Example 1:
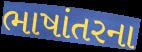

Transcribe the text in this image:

ભાષાંતરના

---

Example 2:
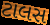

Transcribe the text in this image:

ટાલસ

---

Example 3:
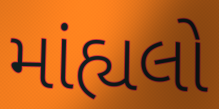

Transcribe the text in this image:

માંહ્યલો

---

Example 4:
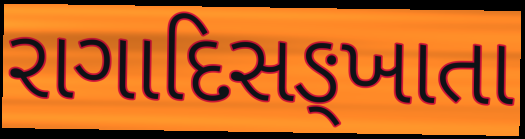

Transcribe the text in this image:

રાગાદિસઙ્ખાતા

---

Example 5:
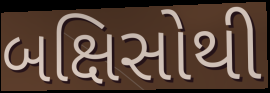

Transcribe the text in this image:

બક્ષિસોથી